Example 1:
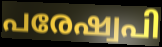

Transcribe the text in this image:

പരേഷ്വപി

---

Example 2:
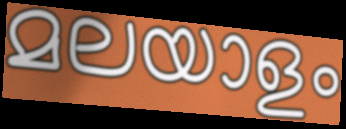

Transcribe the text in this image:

മലയാളം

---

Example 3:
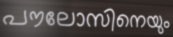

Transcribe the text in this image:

പൗലോസിനെയും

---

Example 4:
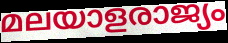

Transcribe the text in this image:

മലയാളരാജ്യം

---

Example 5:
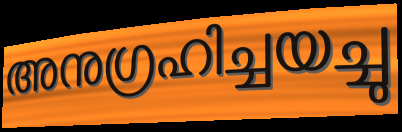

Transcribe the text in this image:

അനുഗ്രഹിച്ചയച്ചു